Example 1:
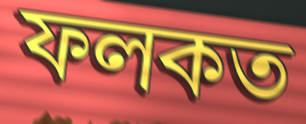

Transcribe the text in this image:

ফলকত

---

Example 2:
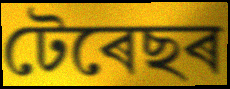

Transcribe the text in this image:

টেৰেছৰ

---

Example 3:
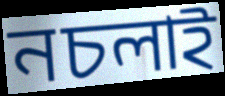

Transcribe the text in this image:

নচলাই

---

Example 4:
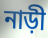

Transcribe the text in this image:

নাড়ী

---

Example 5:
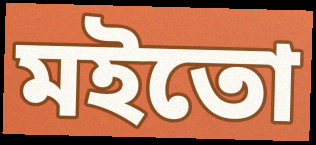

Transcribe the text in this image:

মইতো